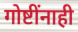
गोष्टींनाही